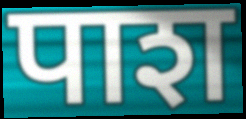
पाश